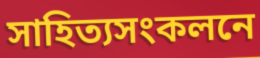
সাহিত্যসংকলনে